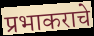
प्रभाकराचे